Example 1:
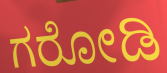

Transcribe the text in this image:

ಗರೋಡಿ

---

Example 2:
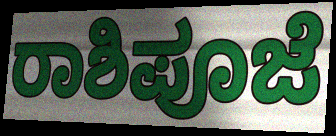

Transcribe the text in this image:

ರಾಶಿಪೂಜೆ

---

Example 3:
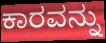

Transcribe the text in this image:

ಕಾರವನ್ನು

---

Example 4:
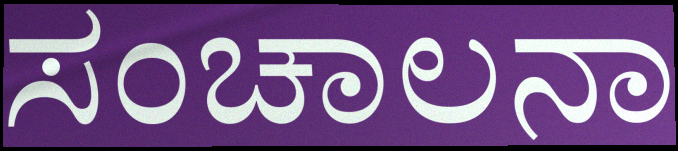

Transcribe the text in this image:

ಸಂಚಾಲನಾ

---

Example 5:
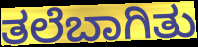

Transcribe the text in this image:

ತಲೆಬಾಗಿತು